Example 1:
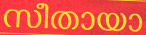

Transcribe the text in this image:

സീതായാ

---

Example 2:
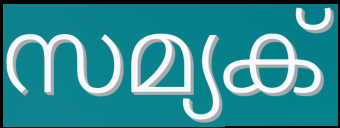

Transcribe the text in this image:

സമ്യക്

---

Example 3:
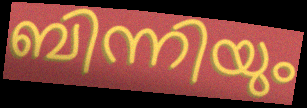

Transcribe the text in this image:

ബിന്നിയും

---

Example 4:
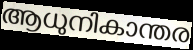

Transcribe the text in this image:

ആധുനികാന്തര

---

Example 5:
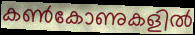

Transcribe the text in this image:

കൺകോണുകളിൽ